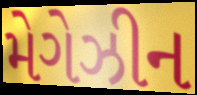
મેગેઝીન